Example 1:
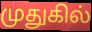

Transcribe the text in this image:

முதுகில்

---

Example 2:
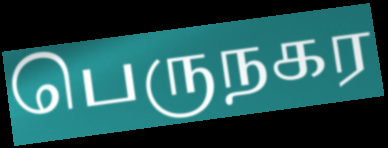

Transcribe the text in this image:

பெருநகர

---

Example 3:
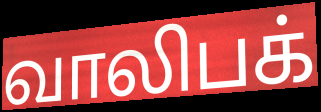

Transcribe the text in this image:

வாலிபக்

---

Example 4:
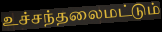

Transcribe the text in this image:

உச்சந்தலைமட்டும்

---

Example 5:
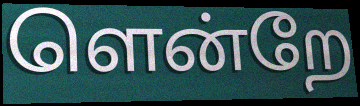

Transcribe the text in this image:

ளென்றே